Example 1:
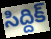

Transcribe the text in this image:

సిద్దిక్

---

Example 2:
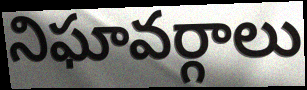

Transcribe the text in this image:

నిఘావర్గాలు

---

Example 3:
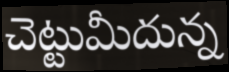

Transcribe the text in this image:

చెట్టుమీదున్న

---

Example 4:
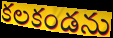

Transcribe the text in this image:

కలకండను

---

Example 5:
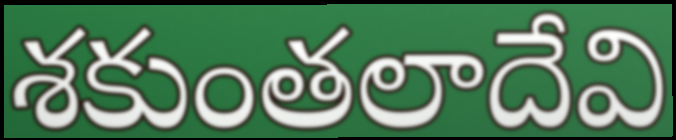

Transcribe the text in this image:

శకుంతలాదేవి